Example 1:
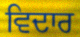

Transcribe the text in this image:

ਵਿਦਾਰ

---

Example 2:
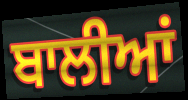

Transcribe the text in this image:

ਬਾਲੀਆਂ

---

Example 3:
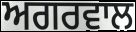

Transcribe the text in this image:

ਅਗਰਵਾਲ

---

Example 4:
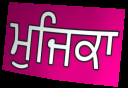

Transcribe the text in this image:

ਮੁਜਿਕਾ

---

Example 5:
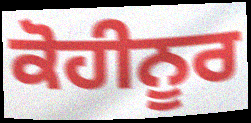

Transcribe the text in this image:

ਕੋਹੀਨੂਰ